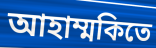
আহাম্মকিতে